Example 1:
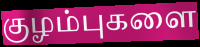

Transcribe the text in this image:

குழம்புகளை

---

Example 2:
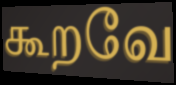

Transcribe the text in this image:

கூறவே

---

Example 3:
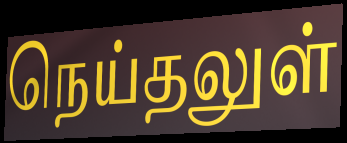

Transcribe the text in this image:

நெய்தலுள்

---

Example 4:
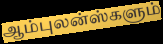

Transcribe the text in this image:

ஆம்புலன்ஸ்களும்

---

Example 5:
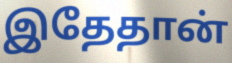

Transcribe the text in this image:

இதேதான்